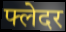
फ्लेदर